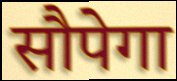
सौपेगा